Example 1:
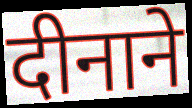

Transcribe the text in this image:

दीनाने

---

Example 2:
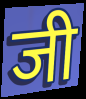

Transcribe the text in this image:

जी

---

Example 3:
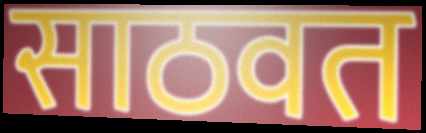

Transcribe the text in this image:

साठवत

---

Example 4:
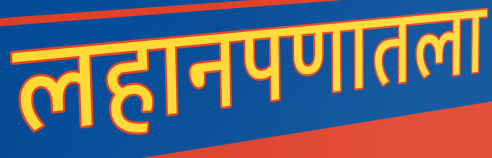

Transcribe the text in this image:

लहानपणातला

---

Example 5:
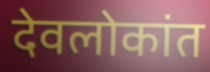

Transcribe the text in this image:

देवलोकांत